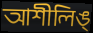
আশীলিঙ্